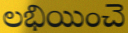
లభియించె